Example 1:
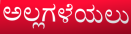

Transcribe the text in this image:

ಅಲ್ಲಗಳೆಯಲು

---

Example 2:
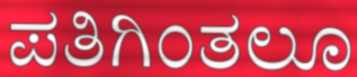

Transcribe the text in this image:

ಪತಿಗಿಂತಲೂ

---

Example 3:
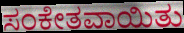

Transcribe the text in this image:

ಸಂಕೇತವಾಯಿತು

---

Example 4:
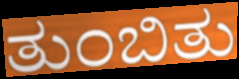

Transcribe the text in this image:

ತುಂಬಿತು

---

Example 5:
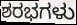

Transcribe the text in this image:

ಶರಭಗಳು